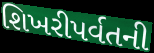
શિખરીપર્વતની